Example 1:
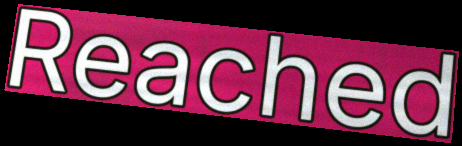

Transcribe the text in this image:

Reached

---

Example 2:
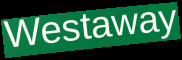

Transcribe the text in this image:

Westaway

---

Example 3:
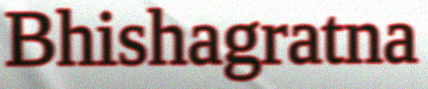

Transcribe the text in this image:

Bhishagratna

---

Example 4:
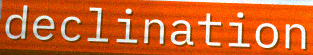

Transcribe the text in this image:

declination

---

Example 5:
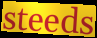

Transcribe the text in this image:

steeds